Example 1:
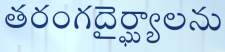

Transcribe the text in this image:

తరంగదైర్ఘ్యాలను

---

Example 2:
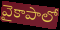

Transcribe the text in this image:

వైకాపాలో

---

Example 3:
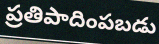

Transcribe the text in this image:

ప్రతిపాదింపబడు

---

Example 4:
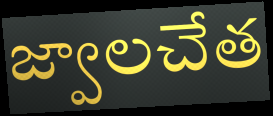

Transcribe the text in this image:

జ్వాలచేత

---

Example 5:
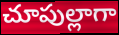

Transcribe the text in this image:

చూపుల్లాగా